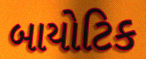
બાયોટિક